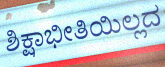
ಶಿಕ್ಷಾಭೀತಿಯಿಲ್ಲದ